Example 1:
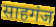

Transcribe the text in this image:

साहगंज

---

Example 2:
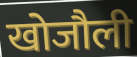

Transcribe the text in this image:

खोजौली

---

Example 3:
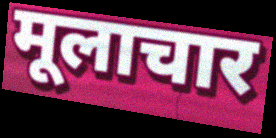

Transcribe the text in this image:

मूलाचार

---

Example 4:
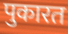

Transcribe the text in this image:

पुकारत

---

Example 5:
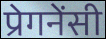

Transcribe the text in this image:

प्रेगनेंसी